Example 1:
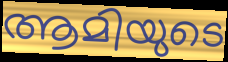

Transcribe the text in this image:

ആമിയുടെ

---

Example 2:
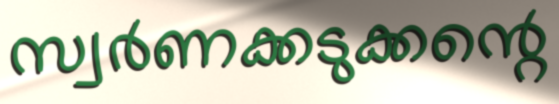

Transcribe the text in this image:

സ്വർണക്കടുക്കന്റെ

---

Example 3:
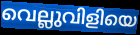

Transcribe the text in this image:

വെല്ലുവിളിയെ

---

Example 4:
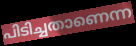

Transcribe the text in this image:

പിടിച്ചതാണെന്ന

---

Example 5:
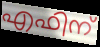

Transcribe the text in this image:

എഫിന്